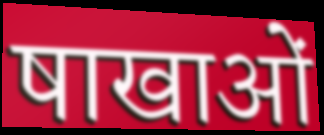
षाखाओं